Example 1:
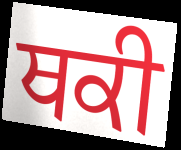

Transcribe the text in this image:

ਥਕੀ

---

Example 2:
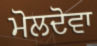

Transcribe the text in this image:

ਮੋਲਦੋਵਾ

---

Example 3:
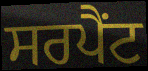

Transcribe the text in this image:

ਸਰਪੈਂਟ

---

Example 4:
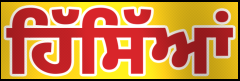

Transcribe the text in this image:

ਹਿੱਸਿੱਆਂ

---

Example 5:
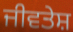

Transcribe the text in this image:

ਜੀਵਤੇਸ਼